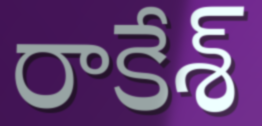
రాకేశ్